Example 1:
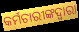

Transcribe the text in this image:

କର୍ମଚାରୀଙ୍କଦ୍ୱାରା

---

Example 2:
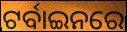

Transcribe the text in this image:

ଟର୍ବାଇନରେ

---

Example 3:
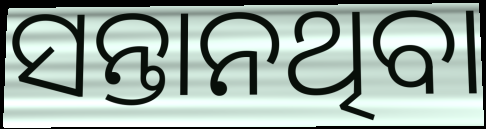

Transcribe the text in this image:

ସନ୍ତାନଥିବା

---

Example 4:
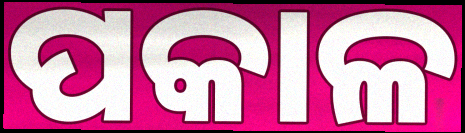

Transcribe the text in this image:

ପକାଳ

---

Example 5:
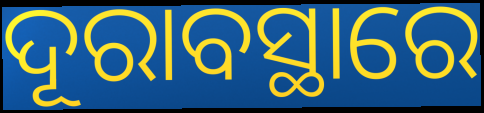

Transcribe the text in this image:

ଦୂରାବସ୍ଥାରେ